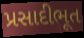
પ્રસાદીભૂત